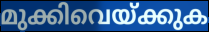
മുക്കിവെയ്ക്കുക